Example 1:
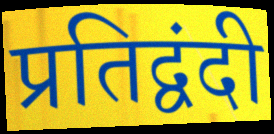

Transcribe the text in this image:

प्रतिद्वंदी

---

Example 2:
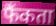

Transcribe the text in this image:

फैंकता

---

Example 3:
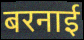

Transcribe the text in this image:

बरनाई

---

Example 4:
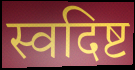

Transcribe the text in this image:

स्वदिष्ट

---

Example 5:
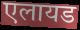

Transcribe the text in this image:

एलायड